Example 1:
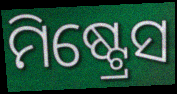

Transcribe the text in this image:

ମିଷ୍ଟ୍ରେସ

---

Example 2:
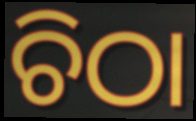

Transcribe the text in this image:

ଚିଠା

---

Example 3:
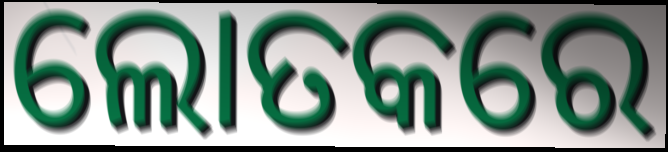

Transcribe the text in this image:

ଲୋତକରେ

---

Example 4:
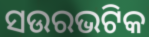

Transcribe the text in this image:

ସଉରଭଟିକ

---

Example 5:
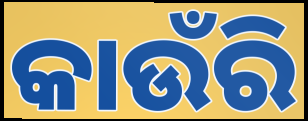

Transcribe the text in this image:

କାଉଁରି